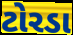
ટોરડા